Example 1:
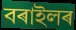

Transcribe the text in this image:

বৰাইলৰ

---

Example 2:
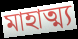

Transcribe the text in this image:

মাহাত্ম্য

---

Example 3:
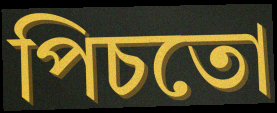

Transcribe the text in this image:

পিচতো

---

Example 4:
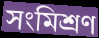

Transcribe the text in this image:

সংমিশ্ৰণ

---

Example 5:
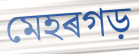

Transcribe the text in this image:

মেহৰগড়